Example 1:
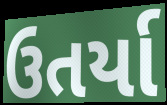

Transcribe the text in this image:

ઉતર્યા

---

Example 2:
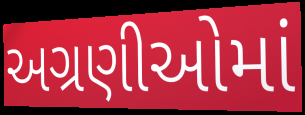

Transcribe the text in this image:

અગ્રણીઓમાં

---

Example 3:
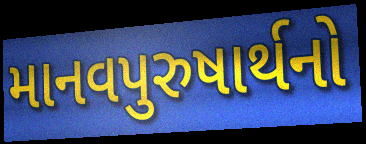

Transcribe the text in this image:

માનવપુરુષાર્થનો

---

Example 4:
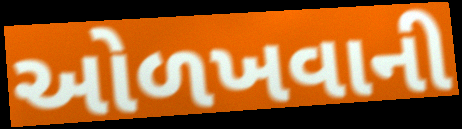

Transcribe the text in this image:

ઓળખવાની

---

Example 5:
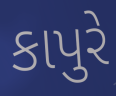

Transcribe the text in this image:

કાપુરે